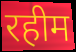
रहीम